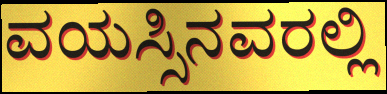
ವಯಸ್ಸಿನವರಲ್ಲಿ